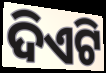
ଦିଏଟି